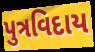
પુત્રવિદાય